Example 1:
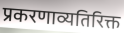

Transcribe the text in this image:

प्रकरणाव्यतिरिक्त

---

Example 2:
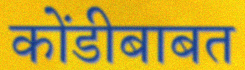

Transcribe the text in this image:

कोंडीबाबत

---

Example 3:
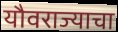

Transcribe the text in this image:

यौवराज्याचा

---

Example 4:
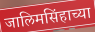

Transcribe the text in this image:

जालिमसिंहाच्या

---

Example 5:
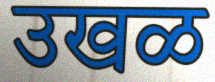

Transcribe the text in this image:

उखळ